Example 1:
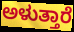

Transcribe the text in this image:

ಅಳುತ್ತಾರೆ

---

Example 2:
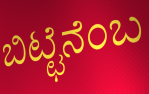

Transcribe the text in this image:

ಬಿಟ್ಟೆನೆಂಬ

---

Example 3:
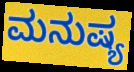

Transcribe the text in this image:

ಮನುಷ್ಯ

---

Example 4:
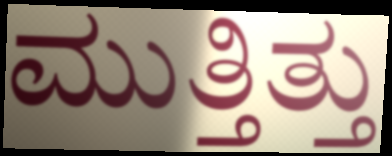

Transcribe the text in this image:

ಮುತ್ತಿತ್ತು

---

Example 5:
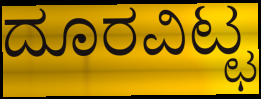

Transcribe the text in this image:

ದೂರವಿಟ್ಟ